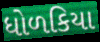
ધોળકિયા